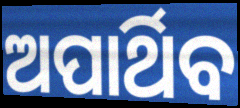
ଅପାର୍ଥିବ